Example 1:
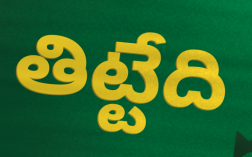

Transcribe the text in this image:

తిట్టేది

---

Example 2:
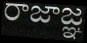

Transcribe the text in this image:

రాజాజ్ఞ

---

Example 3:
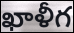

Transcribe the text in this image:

ఖాళీగ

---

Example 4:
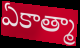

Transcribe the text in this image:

ఏకాత్మా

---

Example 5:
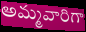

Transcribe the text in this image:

అమ్మవారిగా